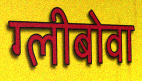
ग्लीबोवा